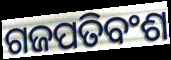
ଗଜପତିବଂଶ